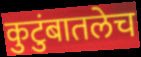
कुटुंबातलेच